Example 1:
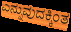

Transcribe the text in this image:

ಎನ್ನುವುದಕ್ಕಿಂತ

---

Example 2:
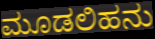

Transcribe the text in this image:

ಮೂಡಲಿಹನು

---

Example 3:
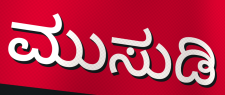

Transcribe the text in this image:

ಮುಸುಡಿ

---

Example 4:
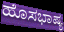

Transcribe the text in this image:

ಹೊಸಭಾಷ್ಯ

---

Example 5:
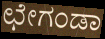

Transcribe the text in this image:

ಛೇಗಂಡಾ